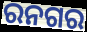
ରନଗର